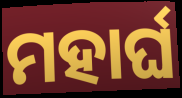
ମହାର୍ଘ